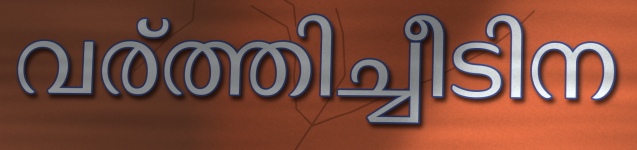
വര്ത്തിച്ചീടിന